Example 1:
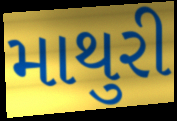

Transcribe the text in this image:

માથુરી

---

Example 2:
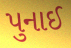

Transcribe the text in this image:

પુનાઈ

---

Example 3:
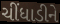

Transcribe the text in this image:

ચીંધાડીને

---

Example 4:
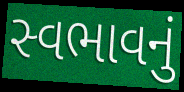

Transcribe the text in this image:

સ્વભાવનું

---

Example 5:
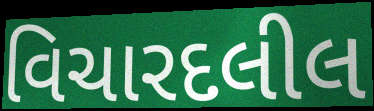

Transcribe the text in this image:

વિચારદલીલ